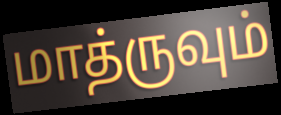
மாத்ருவும்